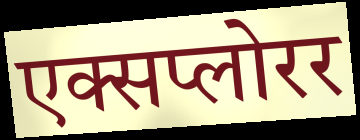
एक्सप्लोरर